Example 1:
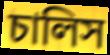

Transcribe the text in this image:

চালিস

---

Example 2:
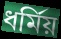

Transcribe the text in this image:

ধর্মিয়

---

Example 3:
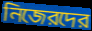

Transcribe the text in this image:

নিজেরদের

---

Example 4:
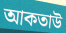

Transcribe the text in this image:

আকতাউ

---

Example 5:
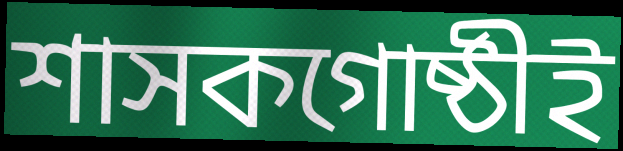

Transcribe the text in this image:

শাসকগোষ্ঠীই